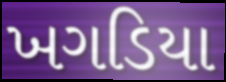
ખગડિયા